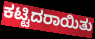
ಕಟ್ಟಿದರಾಯಿತು